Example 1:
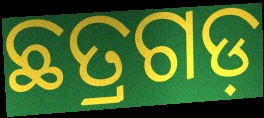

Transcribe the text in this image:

ଛତ୍ରଗଡ଼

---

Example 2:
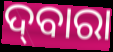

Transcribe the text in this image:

ଦ୍‌ବାରା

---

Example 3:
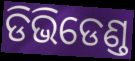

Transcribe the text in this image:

ଡିଭିଡେଣ୍ଡ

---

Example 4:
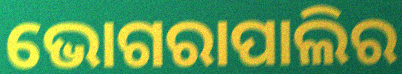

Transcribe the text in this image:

ଭୋଗରାପାଲିର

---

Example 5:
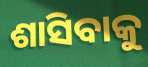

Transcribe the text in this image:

ଶାସିବାକୁ